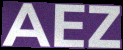
AEZ